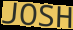
JOSH